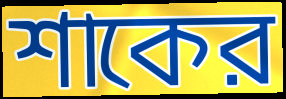
শাকের